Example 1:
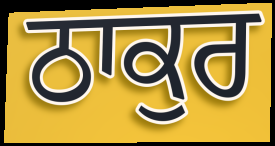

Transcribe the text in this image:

ਠਾਕੁਰ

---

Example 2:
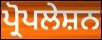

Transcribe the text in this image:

ਪ੍ਰੋਪਲੇਸ਼ਨ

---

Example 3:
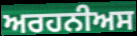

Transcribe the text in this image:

ਅਰਹਨੀਅਸ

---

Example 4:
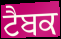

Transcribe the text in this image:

ਟੈਬਕ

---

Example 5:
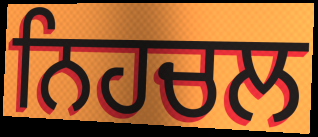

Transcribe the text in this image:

ਨਿਹਚਲ